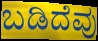
ಬಡಿದೆವು